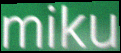
miku